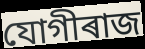
যোগীৰাজ